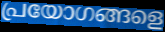
പ്രയോഗങ്ങളെ